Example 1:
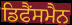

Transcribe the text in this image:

ਡਿਫੈਂਸਮੈਨ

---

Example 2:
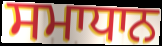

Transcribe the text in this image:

ਸਮਾਧਾਨ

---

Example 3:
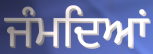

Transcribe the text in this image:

ਜੰਮਦਿਆਂ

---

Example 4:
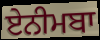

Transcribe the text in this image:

ਏਨੀਮਬਾ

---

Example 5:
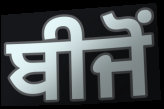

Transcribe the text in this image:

ਬੀਜੋਂ